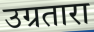
उग्रतारा